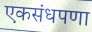
एकसंधपणा